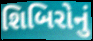
શિબિરોનું